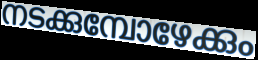
നടക്കുമ്പോഴേക്കും